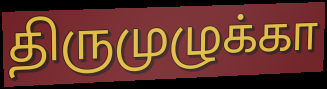
திருமுழுக்கா